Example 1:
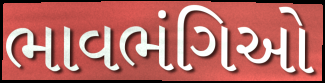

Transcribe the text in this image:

ભાવભંગિઓ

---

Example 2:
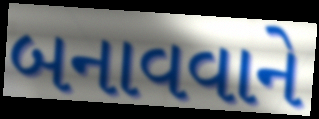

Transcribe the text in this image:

બનાવવાને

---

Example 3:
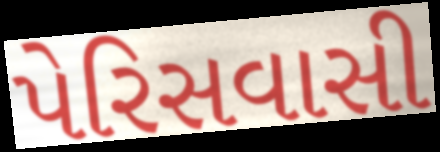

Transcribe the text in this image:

પેરિસવાસી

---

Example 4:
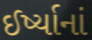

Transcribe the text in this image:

ઈર્ષ્યાનાં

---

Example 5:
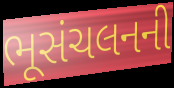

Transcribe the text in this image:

ભૂસંચલનની